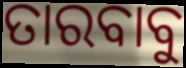
ତାରବାବୁ